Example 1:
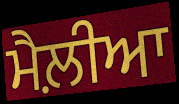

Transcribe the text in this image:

ਮੈਲ਼ੀਆ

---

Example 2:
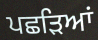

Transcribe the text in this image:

ਪਛੜਿਆਂ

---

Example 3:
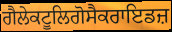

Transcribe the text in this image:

ਗੈਲੇਕਟੂਲਿਗੋਸੈਕਰਾਇਡਜ਼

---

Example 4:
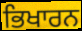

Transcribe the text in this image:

ਭਿਖਾਰਨ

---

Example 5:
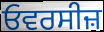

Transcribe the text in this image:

ਓਵਰਸੀਜ਼